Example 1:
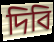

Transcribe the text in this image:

দিবি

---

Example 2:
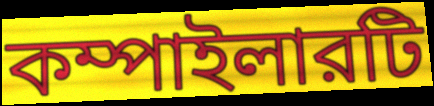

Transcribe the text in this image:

কম্পাইলারটি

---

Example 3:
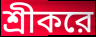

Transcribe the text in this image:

শ্রীকরে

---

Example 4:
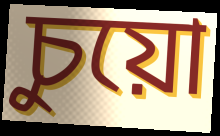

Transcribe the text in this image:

চুয়ো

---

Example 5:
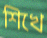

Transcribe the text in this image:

শিখে